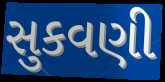
સુકવણી